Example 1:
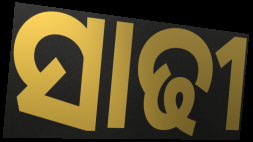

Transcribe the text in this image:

ସାଢୀ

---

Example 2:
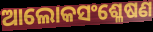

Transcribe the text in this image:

ଆଲୋକସଂଶ୍ଳେଷଣ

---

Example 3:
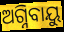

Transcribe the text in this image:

ଅଗ୍ନିବାୟୁ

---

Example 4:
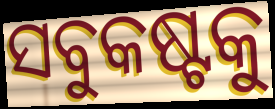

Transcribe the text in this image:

ସବୁକଷ୍ଟକୁ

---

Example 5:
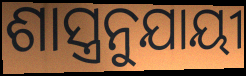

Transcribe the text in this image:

ଶାସ୍ତ୍ରନୁଯାୟୀ